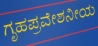
ಗೃಹಪ್ರವೇಶನೀಯ